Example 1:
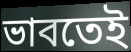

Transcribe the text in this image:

ভাবতেই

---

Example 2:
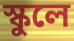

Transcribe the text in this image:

স্কুলে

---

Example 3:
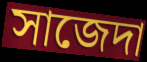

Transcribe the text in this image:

সাজেদা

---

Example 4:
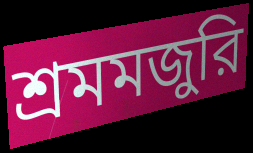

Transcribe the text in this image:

শ্রমমজুরি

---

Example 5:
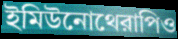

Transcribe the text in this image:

ইমিউনোথেরাপিও